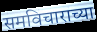
समविचाराच्या